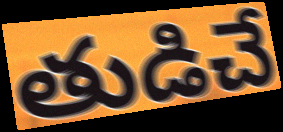
తుడిచే